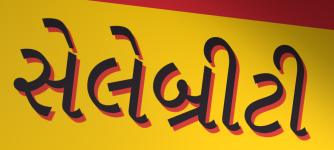
સેલેબ્રીટી